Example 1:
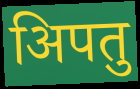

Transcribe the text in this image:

अिपतु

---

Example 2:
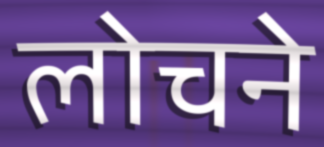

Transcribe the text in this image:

लोचने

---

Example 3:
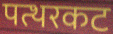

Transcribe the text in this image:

पत्थरकट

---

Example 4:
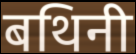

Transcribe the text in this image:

बथिनी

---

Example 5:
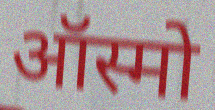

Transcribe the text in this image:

ऑस्मो